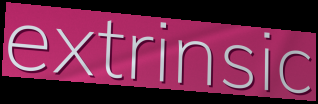
extrinsic